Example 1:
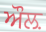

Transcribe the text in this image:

ਔਲ਼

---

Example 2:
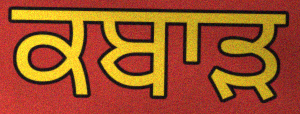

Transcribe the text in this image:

ਕਬਾਡ਼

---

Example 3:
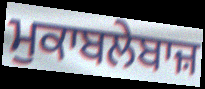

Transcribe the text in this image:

ਮੁਕਾਬਲੇਬਾਜ਼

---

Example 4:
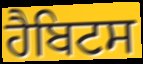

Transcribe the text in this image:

ਹੈਬਿਟਸ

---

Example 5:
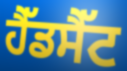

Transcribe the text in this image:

ਹੈੱਡਸੈੱਟ